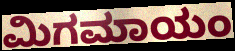
ಮಿಗಮಾಯಂ